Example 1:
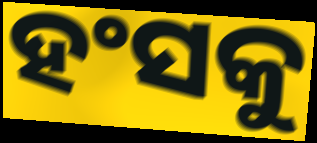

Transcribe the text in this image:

ହଂସକୁ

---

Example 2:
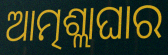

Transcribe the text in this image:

ଆତ୍ମଶ୍ଲାଘାର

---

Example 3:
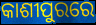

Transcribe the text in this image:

କାଶୀପୁରରେ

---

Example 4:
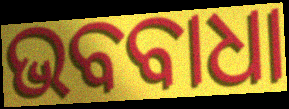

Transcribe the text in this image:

ଭବବାଧା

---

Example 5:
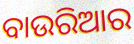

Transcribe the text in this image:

ବାଉରିଆର